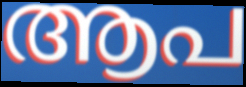
ആപ